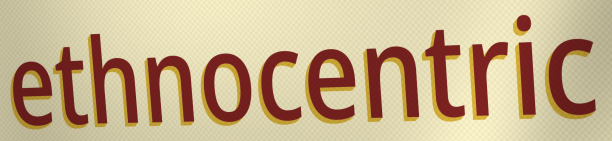
ethnocentric